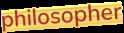
philosopher